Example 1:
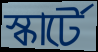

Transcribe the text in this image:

স্কার্টে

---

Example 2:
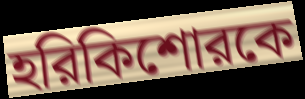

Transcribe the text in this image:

হরিকিশোরকে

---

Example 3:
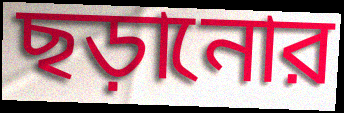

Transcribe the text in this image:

ছড়ানোর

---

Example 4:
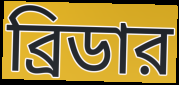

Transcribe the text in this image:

ব্রিডার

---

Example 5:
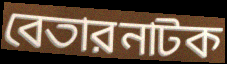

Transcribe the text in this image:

বেতারনাটক